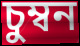
চুম্বন